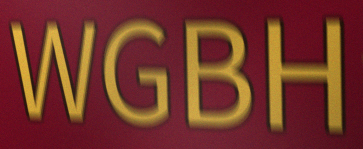
WGBH